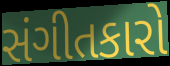
સંગીતકારો